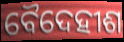
ବୈଦେହୀଶ